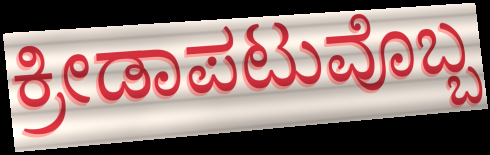
ಕ್ರೀಡಾಪಟುವೊಬ್ಬ